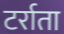
टर्राता